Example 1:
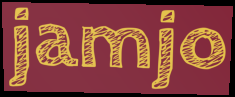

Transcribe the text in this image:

jamjo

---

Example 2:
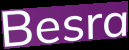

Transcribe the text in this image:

Besra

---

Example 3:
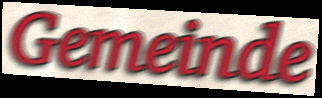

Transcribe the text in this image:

Gemeinde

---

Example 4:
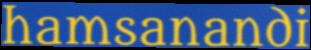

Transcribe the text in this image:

hamsanandi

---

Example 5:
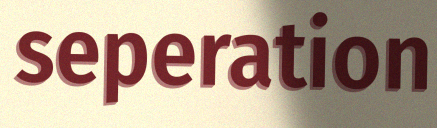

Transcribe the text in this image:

seperation